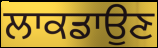
ਲਾਕਡਾਉਣ